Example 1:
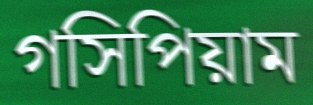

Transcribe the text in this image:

গসিপিয়াম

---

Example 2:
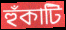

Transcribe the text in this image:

হুঁকাটি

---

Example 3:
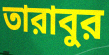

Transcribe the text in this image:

তারাবুর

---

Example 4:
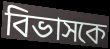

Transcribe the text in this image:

বিভাসকে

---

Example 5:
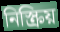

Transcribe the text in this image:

নিস্ক্রিয়